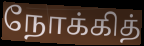
நோக்கித்